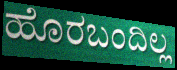
ಹೊರಬಂದಿಲ್ಲ